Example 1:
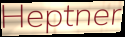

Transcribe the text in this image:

Heptner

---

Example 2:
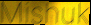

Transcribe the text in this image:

Mishuk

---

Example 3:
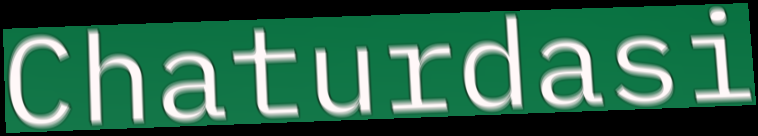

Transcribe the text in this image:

Chaturdasi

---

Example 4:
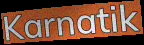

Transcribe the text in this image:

Karnatik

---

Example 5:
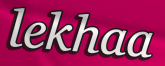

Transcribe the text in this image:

lekhaa